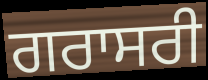
ਗਰਾਸਰੀ